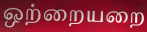
ஒற்றையறை